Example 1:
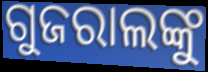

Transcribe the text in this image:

ଗୁଜରାଲଙ୍କୁ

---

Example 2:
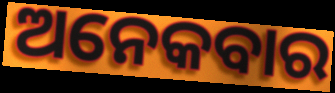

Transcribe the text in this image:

ଅନେକବାର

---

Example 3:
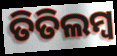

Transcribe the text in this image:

ତିତିଲମ୍ଵ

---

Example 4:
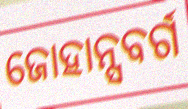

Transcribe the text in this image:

ଜୋହାନ୍ସବର୍ଗ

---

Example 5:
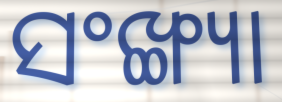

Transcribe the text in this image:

ସଂଙ୍ଖ୍ଯା